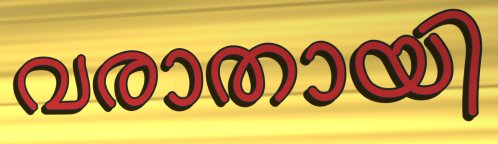
വരാതായി